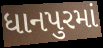
ધાનપુરમાં